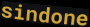
sindone